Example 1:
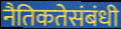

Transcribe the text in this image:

नैतिकतेसंबंधी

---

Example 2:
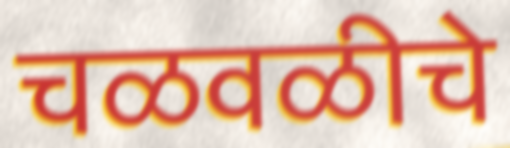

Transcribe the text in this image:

चळवळीचे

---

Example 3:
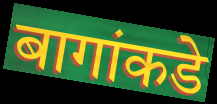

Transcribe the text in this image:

बागांकडे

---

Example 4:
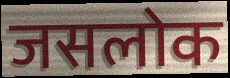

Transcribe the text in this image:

जसलोक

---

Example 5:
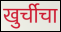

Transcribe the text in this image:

खुर्चीचा